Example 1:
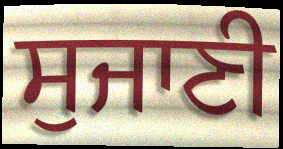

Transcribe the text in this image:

ਸੁਜਾਣੀ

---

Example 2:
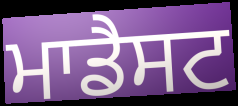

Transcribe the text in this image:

ਮਾਡੈਸਟ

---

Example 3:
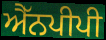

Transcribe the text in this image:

ਐੱਨਪੀਪੀ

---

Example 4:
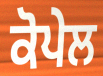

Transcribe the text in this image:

ਕੋਪੇਲ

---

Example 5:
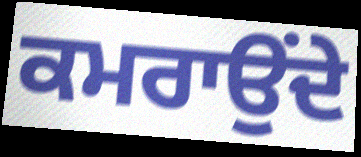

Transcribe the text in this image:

ਕਮਰਾਉਂਦੇ